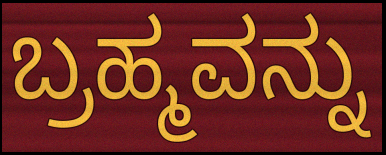
ಬ್ರಹ್ಮವನ್ನು